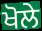
ਖੋਲੇ